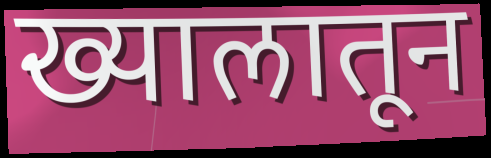
ख्यालातून